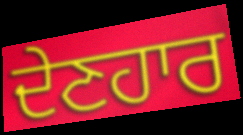
ਦੇਣਹਾਰ